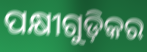
ପକ୍ଷୀଗୁଡ଼ିକର